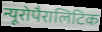
न्यूरोपैरालिटिक